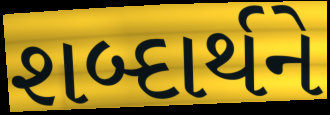
શબ્દાર્થને